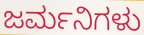
ಜರ್ಮನಿಗಳು